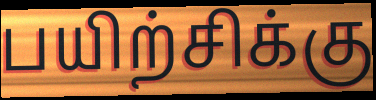
பயிற்சிக்கு